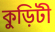
কুড়িটী